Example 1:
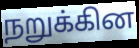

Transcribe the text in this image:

நறுக்கின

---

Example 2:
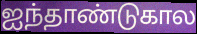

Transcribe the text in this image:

ஐந்தாண்டுகால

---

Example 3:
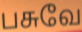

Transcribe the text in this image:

பசுவே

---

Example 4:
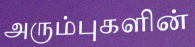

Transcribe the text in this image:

அரும்புகளின்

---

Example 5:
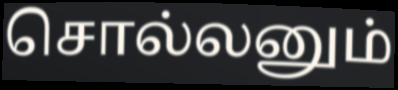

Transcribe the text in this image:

சொல்லனும்